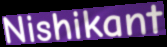
Nishikant